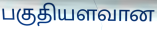
பகுதியளவான